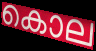
കൊല